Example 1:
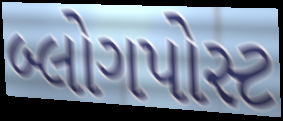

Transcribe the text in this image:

બ્લોગપોસ્ટ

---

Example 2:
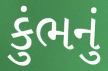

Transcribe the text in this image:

કુંભનું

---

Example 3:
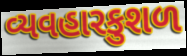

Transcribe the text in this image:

વ્યવહારકુશળ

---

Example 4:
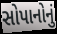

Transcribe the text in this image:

સોપાનોનું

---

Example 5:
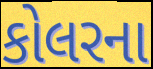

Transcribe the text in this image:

કોલરના